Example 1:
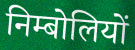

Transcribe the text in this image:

निम्बोलियों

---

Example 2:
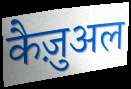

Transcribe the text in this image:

कैज़ुअल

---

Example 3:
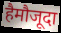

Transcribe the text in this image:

हैमौजूदा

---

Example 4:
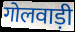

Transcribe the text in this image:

गोलवाड़ी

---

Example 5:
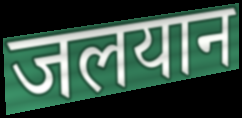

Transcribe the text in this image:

जलयान